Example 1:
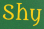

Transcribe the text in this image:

Shy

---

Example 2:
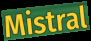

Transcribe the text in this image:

Mistral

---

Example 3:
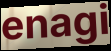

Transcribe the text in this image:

enagi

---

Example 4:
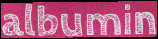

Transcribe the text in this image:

albumin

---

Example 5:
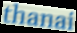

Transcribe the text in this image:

thanai